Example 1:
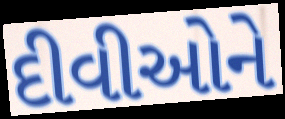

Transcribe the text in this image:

દીવીઓને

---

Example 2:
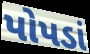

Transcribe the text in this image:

પોપડાં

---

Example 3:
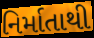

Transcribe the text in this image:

નિર્માતાથી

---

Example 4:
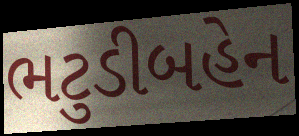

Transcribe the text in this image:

ભટુડીબહેન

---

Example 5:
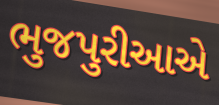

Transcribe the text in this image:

ભુજપુરીઆએ